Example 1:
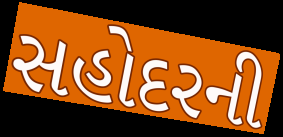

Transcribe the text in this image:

સહોદરની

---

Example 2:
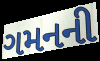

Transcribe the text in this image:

ગમનની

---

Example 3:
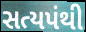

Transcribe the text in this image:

સત્યપંથી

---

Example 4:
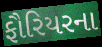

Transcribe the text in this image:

ફૌરિયરના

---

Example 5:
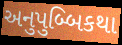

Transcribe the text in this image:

અનુપુબ્બિકથા